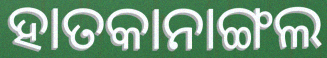
ହାତକାନାଙ୍ଗଲ